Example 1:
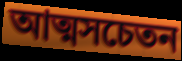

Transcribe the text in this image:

আত্মসচেতন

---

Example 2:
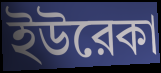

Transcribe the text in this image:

ইউরেকা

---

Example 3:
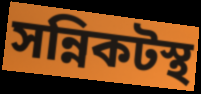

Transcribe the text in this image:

সন্নিকটস্থ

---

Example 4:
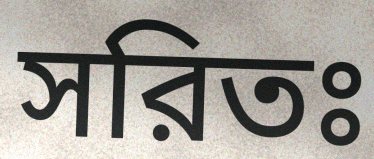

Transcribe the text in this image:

সরিতঃ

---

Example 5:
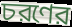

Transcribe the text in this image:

চরণের